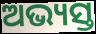
ଅଭ୍ୟସ୍ତ